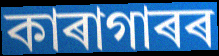
কাৰাগাৰৰ